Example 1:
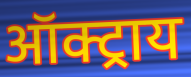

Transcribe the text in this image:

ऑक्ट्राय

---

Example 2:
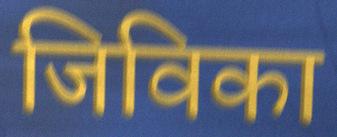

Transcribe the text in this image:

जिविका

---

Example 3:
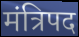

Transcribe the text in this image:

मंत्रिपद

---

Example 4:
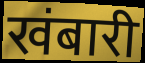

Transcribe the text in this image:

खंबारी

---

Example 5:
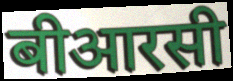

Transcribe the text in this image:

बीआरसी